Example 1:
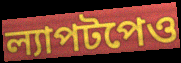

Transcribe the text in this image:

ল্যাপটপেও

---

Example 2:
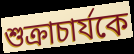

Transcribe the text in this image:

শুক্রাচার্যকে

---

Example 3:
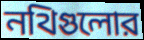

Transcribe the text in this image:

নথিগুলোর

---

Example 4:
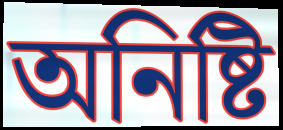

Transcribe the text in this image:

অনিষ্টি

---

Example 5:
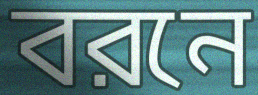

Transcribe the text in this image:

বরনে